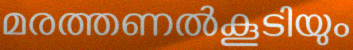
മരത്തണൽകൂടിയും